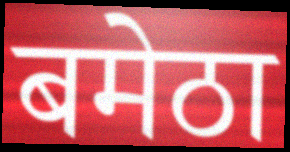
बमेठा